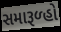
સમારૂળ્હો